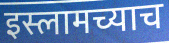
इस्लामच्याच